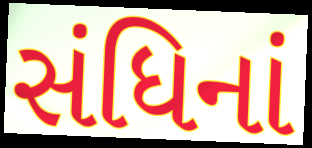
સંધિનાં